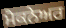
ਮੈਕਨੇਅਰ